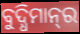
ବୁଦ୍ଧିମାନ୍‍ର